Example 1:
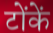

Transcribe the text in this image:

टोंकें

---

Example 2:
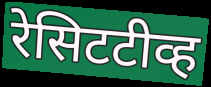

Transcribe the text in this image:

रेसिटटीव्ह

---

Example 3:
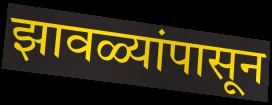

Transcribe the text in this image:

झावळ्यांपासून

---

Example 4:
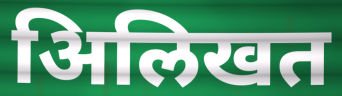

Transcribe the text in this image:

अिलिखत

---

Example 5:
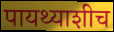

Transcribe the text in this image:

पायथ्याशीच